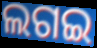
ଲଗଇ